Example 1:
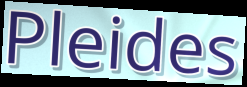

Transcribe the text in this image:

Pleides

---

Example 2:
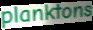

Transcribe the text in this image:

planktons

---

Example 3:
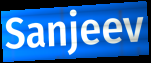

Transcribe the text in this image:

Sanjeev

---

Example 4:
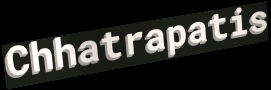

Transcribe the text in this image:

Chhatrapatis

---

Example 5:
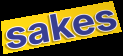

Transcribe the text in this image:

sakes